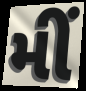
મીં